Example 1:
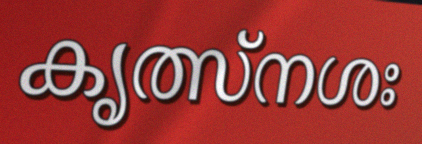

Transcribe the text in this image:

കൃത്സ്നശഃ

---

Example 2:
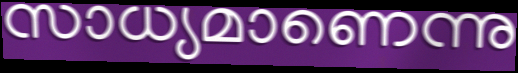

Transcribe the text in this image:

സാധ്യമാണെന്നു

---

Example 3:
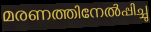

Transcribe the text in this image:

മരണത്തിനേൽപ്പിച്ചു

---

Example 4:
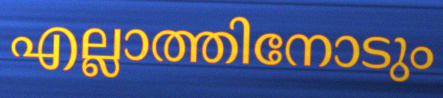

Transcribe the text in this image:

എല്ലാത്തിനോടും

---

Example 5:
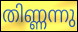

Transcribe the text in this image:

തിണ്ണന്നു